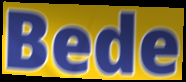
Bede